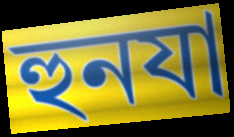
হুনযা